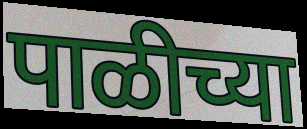
पाळीच्या